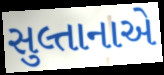
સુલ્તાનાએ